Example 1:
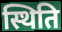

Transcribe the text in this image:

स्थिति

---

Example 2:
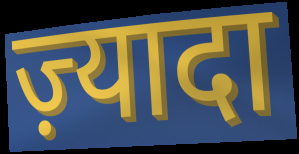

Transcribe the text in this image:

ज़्यादा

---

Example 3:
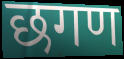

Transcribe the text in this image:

छगण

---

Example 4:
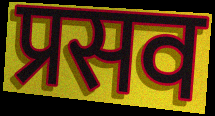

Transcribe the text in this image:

प्रसव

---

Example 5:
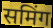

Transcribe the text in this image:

समिंग